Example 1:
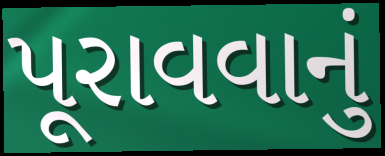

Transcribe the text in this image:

પૂરાવવાનું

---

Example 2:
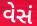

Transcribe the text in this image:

વેસં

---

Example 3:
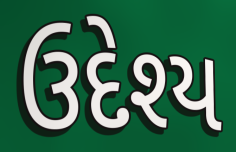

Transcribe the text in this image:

ઉદેશ્ય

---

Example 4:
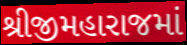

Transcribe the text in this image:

શ્રીજીમહારાજમાં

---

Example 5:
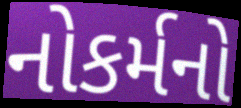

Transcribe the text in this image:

નોકર્મનો